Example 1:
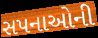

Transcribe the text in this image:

સપનાઓની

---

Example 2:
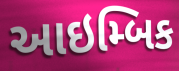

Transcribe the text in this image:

આઇમ્બિક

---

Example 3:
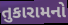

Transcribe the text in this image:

તુકારામનો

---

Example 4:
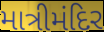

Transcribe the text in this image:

માત્રીમંદિર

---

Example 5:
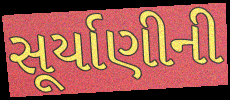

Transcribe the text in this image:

સૂર્યાણીની